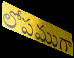
లోపముగా